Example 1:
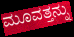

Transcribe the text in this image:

ಮೂವತ್ತನ್ನು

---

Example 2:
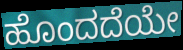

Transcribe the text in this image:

ಹೊಂದದೆಯೇ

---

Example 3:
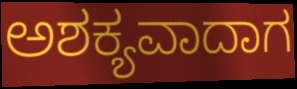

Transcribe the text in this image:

ಅಶಕ್ಯವಾದಾಗ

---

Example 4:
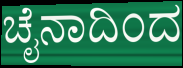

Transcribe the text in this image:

ಚೈನಾದಿಂದ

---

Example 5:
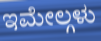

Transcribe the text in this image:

ಇಮೇಲ್ಗಳು